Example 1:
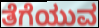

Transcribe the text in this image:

ತೆಗೆಯುವ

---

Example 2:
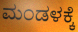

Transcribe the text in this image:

ಮಂಡಳಕ್ಕೆ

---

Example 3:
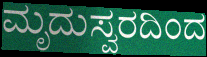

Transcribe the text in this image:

ಮೃದುಸ್ವರದಿಂದ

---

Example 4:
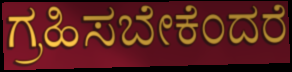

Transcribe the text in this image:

ಗ್ರಹಿಸಬೇಕೆಂದರೆ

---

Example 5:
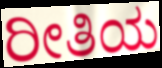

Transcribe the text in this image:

ರೀತಿಯ